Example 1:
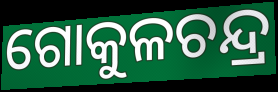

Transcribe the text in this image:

ଗୋକୁଳଚନ୍ଦ୍ର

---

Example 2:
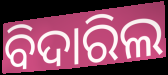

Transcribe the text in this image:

ବିଦାରିଲ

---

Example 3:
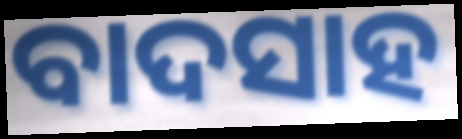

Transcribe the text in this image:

ବାଦସାହ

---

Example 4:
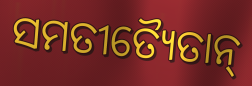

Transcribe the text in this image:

ସମତୀତ୍ୟୈତାନ୍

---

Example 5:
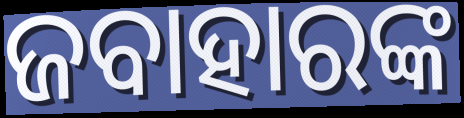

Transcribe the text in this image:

ଜବାହାରଙ୍କ